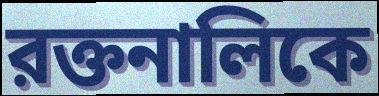
রক্তনালিকে